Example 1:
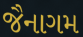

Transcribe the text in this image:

જૈનાગમ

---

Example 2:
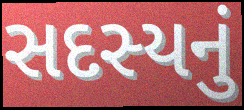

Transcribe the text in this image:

સદસ્યનું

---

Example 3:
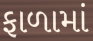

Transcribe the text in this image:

ફાળામાં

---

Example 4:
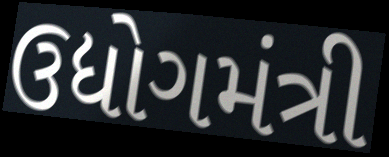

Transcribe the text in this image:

ઉદ્યોગમંત્રી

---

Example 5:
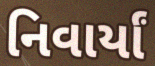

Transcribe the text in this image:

નિવાર્યાં